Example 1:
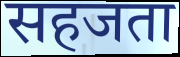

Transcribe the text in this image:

सहजता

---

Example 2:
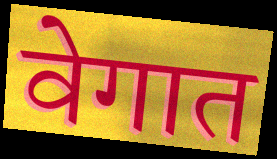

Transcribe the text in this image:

वेगात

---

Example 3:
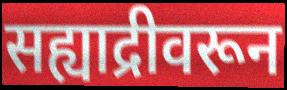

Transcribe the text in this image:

सह्याद्रीवरून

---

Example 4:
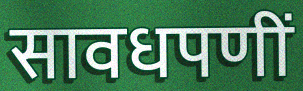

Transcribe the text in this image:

सावधपणीं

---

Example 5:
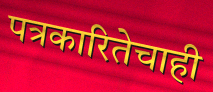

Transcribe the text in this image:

पत्रकारितेचाही